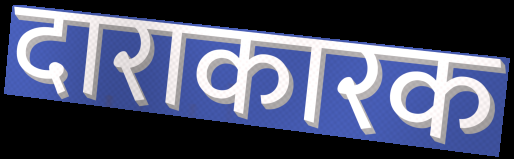
दाराकारक